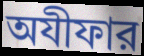
অযীফার